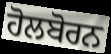
ਹੋਲਬੋਰਨ